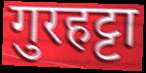
गुरहट्टा